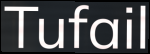
Tufail